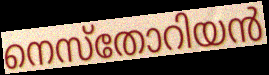
നെസ്തോറിയൻ